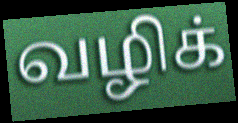
வழிக்